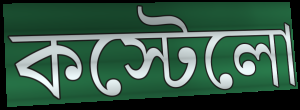
কস্টেলো